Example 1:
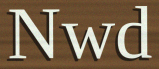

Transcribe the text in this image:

Nwd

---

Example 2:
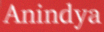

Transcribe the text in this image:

Anindya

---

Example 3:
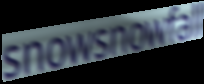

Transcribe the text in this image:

snowsnowfall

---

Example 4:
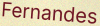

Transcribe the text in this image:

Fernandes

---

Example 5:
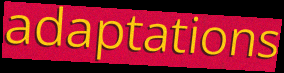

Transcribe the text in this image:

adaptations